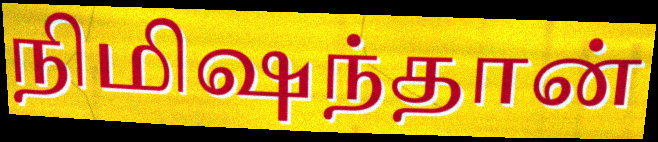
நிமிஷந்தான்